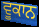
ਵੂਕਾਨ